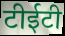
टीईटी